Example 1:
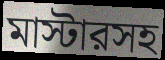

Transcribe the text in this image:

মাস্টারসহ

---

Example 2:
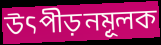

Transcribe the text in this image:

উৎপীড়নমূলক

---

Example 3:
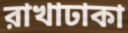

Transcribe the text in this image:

রাখাঢাকা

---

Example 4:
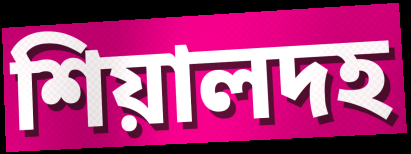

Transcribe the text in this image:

শিয়ালদহ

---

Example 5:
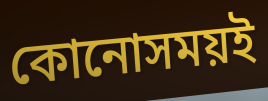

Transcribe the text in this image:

কোনোসময়ই